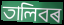
তালিবৰ